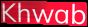
Khwab